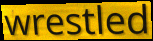
wrestled